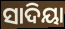
ସାଦିୟା